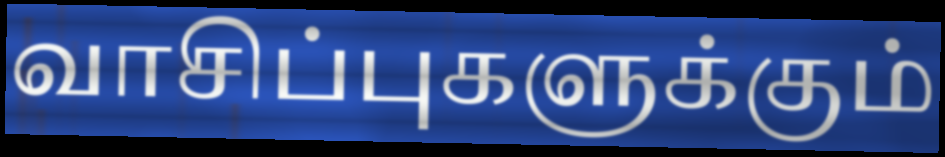
வாசிப்புகளுக்கும்